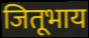
जितूभाय